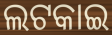
ଲଟକାଇ